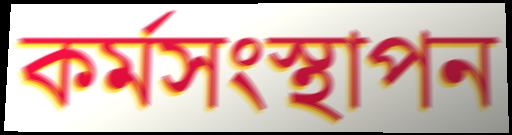
কৰ্মসংস্থাপন